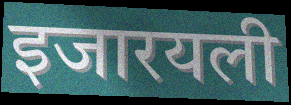
इजारयली